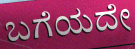
ಬಗೆಯದೇ